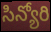
సిన్యోరి